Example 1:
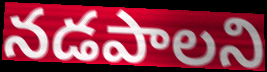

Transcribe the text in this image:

నడపాలని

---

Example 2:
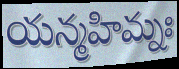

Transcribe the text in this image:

యన్మహిమ్నః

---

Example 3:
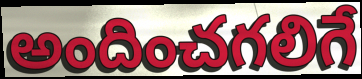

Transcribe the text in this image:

అందించగలిగే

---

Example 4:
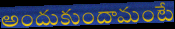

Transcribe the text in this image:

అందుకుందామంటే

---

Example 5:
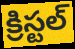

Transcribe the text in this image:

క్రిస్టల్